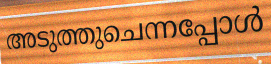
അടുത്തുചെന്നപ്പോൾ